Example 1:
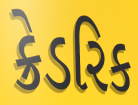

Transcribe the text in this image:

ક્રેડરિક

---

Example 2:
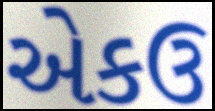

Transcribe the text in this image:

એકઉ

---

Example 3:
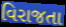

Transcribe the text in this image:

વિરાજતા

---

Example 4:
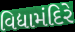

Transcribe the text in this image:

વિદ્યામંદિરે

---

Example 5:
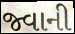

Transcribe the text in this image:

જ્વાની